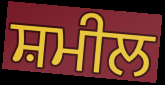
ਸ਼ਮੀਲ